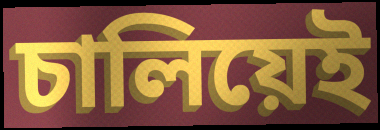
চালিয়েই